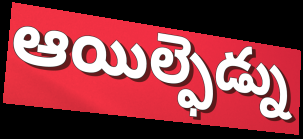
ఆయిల్ఫెడ్ను